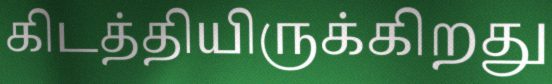
கிடத்தியிருக்கிறது